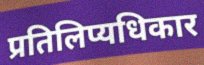
प्रतिलिप्यधिकार